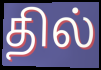
தில்